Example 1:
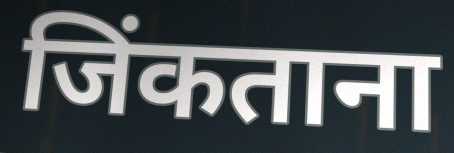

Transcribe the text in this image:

जिंकताना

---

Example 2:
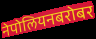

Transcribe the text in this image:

नेपोलियनबरोबर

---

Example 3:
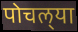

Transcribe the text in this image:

पोचल्या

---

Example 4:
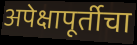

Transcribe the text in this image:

अपेक्षापूर्तीचा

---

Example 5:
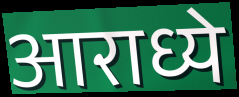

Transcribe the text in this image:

आराध्ये